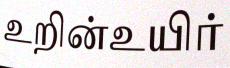
உறின்உயிர்